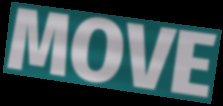
MOVE